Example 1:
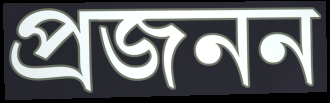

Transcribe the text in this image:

প্রজনন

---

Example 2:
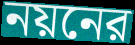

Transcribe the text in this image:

নয়নের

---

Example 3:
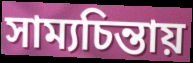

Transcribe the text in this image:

সাম্যচিন্তায়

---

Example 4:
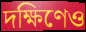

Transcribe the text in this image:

দক্ষিণেও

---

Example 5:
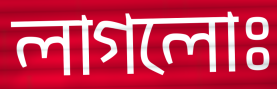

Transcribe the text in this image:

লাগলোঃ